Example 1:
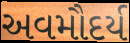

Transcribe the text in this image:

અવમૌદર્ય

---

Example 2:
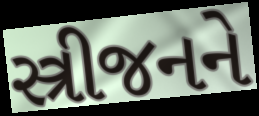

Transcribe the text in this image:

સ્ત્રીજનને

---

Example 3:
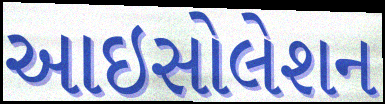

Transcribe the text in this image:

આઇસોલેશન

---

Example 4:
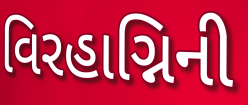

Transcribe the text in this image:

વિરહાગ્નિની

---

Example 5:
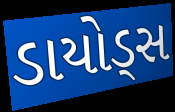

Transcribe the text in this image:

ડાયોડ્સ